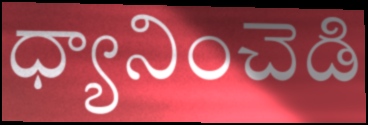
ధ్యానించెడి